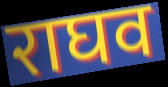
राघव